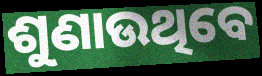
ଶୁଣାଉଥିବେ